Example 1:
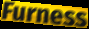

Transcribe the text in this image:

Furness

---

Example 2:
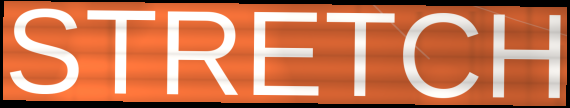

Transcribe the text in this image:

STRETCH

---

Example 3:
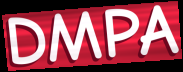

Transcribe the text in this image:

DMPA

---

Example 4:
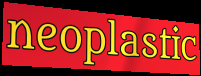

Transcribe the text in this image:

neoplastic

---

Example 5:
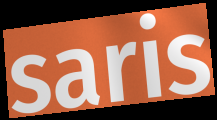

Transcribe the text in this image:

saris